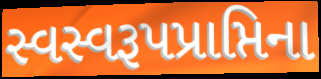
સ્વસ્વરૂપપ્રાપ્તિના